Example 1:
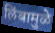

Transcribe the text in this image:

लिंबामुळे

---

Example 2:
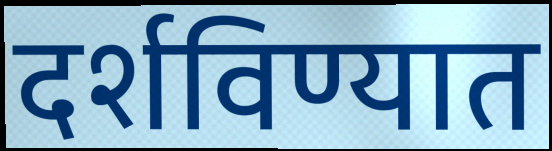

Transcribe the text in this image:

दर्शविण्यात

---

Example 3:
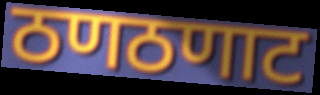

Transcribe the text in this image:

ठणठणाट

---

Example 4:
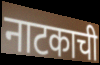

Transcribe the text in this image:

नाटकाची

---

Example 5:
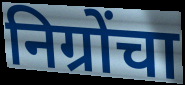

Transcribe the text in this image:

निग्रोंचा